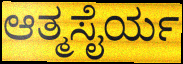
ಆತ್ಮಸೈರ್ಯ